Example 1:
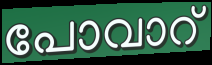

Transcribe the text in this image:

പോവാറ്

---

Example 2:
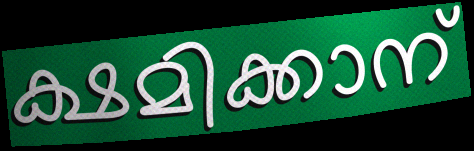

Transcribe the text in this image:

ക്ഷമിക്കാന്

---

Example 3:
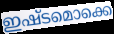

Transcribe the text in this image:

ഇഷ്ടമൊക്കെ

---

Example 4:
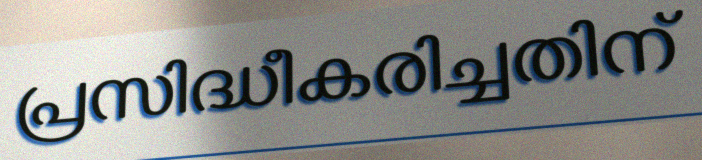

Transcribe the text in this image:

പ്രസിദ്ധീകരിച്ചതിന്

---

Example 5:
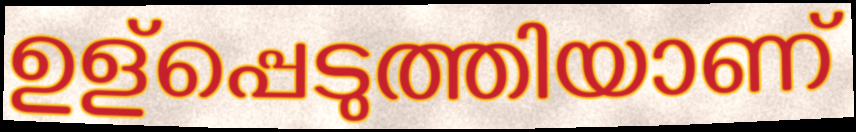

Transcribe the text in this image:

ഉള്പ്പെടുത്തിയാണ്